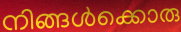
നിങ്ങൾക്കൊരു